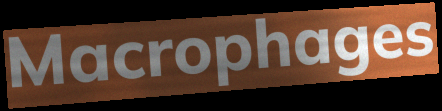
Macrophages